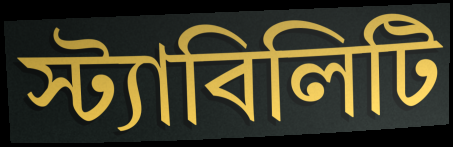
স্ট্যাবিলিটি